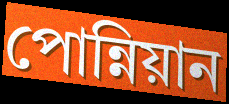
পোন্নিয়ান